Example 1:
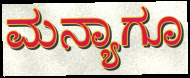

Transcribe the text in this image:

ಮನ್ಯಾಗೂ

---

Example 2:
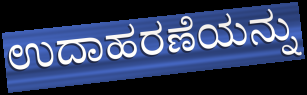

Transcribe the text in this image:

ಉದಾಹರಣೆಯನ್ನು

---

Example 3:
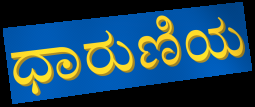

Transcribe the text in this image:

ಧಾರುಣಿಯ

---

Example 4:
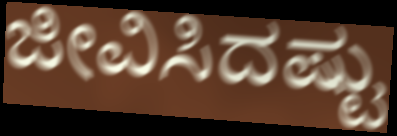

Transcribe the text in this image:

ಜೀವಿಸಿದಷ್ಟು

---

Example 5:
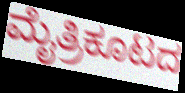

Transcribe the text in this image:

ಮೈತ್ರಿಕೂಟದ